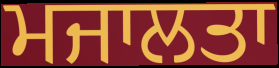
ਮਜਾਲਤਾ